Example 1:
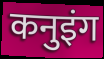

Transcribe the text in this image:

कनुइंग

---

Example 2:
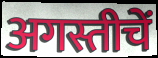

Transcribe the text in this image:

अगस्तीचें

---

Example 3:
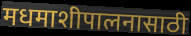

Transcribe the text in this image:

मधमाशीपालनासाठी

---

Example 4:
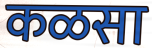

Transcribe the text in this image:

कळसा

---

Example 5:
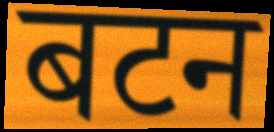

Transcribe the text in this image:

बटन